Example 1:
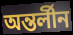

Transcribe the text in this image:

অন্তর্লীন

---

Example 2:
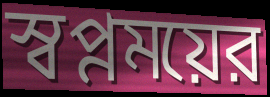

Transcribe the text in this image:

স্বপ্নময়ের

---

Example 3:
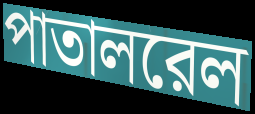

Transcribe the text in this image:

পাতালরেল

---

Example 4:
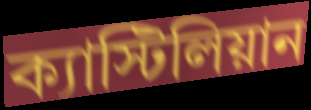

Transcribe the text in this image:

ক্যাস্টিলিয়ান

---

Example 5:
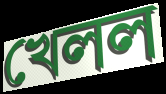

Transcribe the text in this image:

খেলল